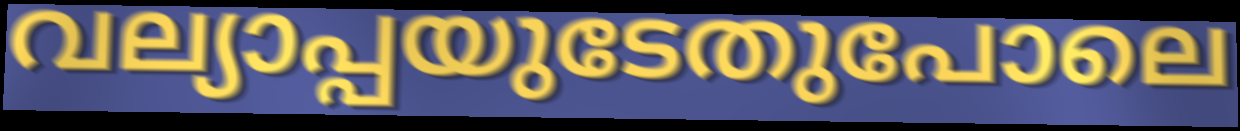
വല്യാപ്പയുടേതുപോലെ